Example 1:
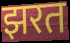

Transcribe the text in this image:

झरत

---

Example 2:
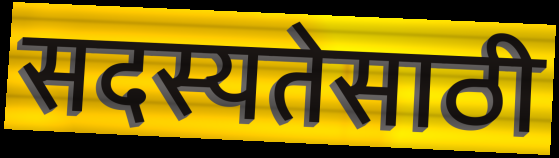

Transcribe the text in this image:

सदस्यतेसाठी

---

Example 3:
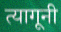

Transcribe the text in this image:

त्यागूनी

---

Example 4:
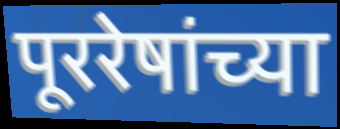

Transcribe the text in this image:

पूररेषांच्या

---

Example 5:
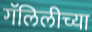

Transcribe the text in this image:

गॅलिलीच्या